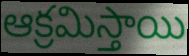
ఆక్రమిస్తాయి